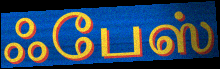
ஃபேஸ்